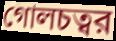
গোলচত্বর